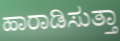
ಹಾರಾಡಿಸುತ್ತಾ